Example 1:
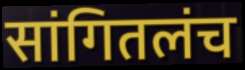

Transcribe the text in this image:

सांगितलंच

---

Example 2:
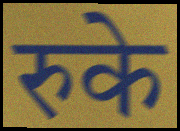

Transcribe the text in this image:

रुके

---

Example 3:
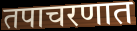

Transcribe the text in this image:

तपाचरणात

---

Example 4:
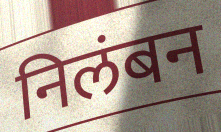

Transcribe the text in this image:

निलंबन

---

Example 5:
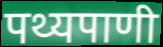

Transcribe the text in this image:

पथ्यपाणी